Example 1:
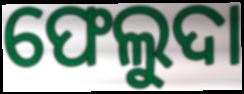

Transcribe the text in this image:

ଫେଲୁଦା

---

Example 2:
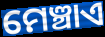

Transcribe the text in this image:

ମେଞ୍ଚାଏ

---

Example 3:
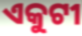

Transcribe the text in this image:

ଏକୁଟୀ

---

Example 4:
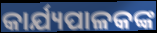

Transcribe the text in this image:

କାର୍ଯ୍ୟପାଳକଙ୍କ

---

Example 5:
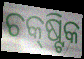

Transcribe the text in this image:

ଚକ୍‌ଷ୍ଟିକ